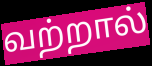
வற்றால்